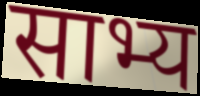
साभ्य